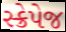
સ્ક્રેપેજ